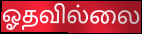
ஓதவில்லை